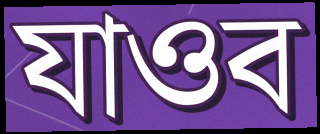
যাওব